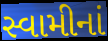
સ્વામીનાં